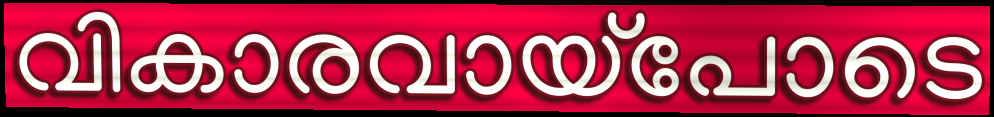
വികാരവായ്പോടെ